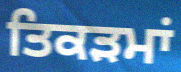
ਤਿਕੜਮਾਂ